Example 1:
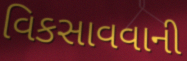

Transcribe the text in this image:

વિકસાવવાની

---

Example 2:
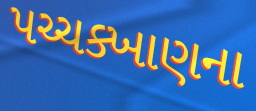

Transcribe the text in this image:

પચ્ચક્ખાણના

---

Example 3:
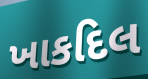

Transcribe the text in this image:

ખાકદિલ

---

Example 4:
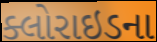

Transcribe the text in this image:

ક્લોરાઇડના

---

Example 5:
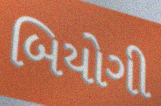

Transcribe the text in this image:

બિયોગી